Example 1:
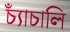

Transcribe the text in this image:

চ্যাঁচালি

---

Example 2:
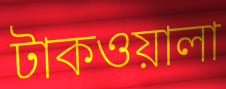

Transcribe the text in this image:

টাকওয়ালা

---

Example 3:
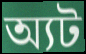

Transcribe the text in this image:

অ্যট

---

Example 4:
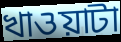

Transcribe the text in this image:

খাওয়াটা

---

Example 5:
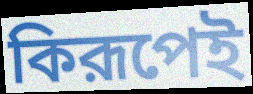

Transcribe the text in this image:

কিরূপেই